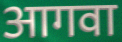
आगवा